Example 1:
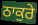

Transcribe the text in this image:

ਠਾਕੁਰੇ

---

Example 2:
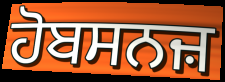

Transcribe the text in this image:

ਹੋਬਸਨਜ਼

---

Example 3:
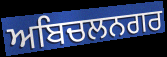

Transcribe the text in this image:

ਅਬਿਚਲਨਗਰ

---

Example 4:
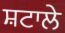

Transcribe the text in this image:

ਸ਼ਟਾਲੇ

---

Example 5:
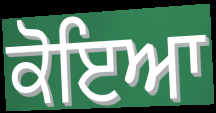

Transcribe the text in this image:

ਕੋਇਆ